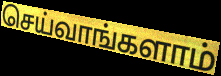
செய்வாங்களாம்